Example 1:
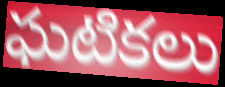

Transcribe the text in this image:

ఘటికలు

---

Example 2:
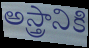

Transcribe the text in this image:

అస్త్రానికి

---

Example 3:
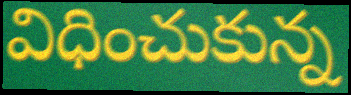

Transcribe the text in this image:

విధించుకున్న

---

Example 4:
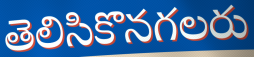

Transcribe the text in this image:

తెలిసికొనగలరు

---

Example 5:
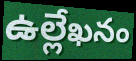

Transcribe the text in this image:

ఉల్లేఖనం